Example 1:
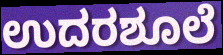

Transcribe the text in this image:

ಉದರಶೂಲೆ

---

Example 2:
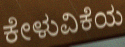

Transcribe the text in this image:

ಕೇಳುವಿಕೆಯ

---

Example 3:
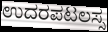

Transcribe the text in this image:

ಉದರಪಟಲಸ್ಸ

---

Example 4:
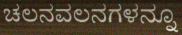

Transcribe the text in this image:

ಚಲನವಲನಗಳನ್ನೂ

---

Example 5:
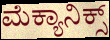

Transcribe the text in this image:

ಮೆಕ್ಯಾನಿಕ್ಸ್